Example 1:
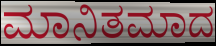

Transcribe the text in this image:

ಮಾನಿತಮಾದ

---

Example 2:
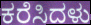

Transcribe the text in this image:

ಕರೆಸಿದಳು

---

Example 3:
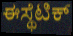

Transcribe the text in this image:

ಈಸ್ಥೆಟಿಕ್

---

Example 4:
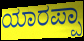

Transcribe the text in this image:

ಯಾರಪ್ಪಾ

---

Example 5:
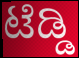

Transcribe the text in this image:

ಟೆಡ್ಡಿ